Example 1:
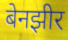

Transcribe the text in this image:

बेनझीर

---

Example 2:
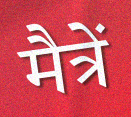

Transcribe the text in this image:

मैत्रें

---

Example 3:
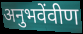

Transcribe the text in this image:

अनुभवेंवीण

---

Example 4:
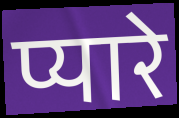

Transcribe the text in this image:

प्यारे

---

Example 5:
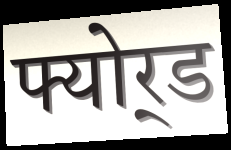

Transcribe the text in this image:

फ्योर्ड